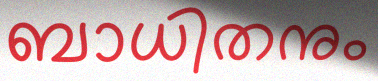
ബാധിതനും